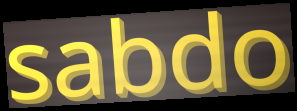
sabdo